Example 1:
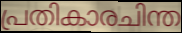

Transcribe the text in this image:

പ്രതികാരചിന്ത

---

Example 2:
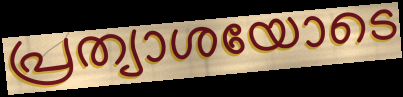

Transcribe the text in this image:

പ്രത്യാശയോടെ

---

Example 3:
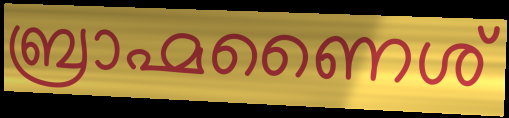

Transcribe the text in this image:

ബ്രാഹ്മണൈശ്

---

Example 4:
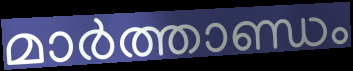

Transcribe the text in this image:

മാർത്താണ്ഡം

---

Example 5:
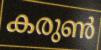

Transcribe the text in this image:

കരുൺ